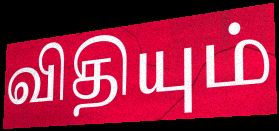
விதியும்